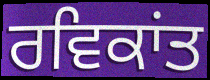
ਰਵਿਕਾਂਤ